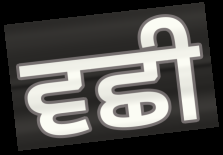
ਵਛੀ